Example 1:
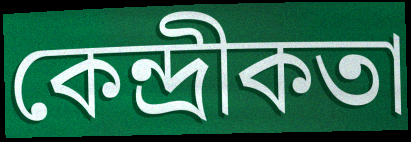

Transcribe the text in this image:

কেন্দ্রীকতা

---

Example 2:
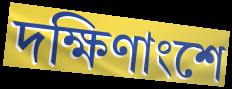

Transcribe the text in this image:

দক্ষিণাংশে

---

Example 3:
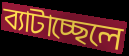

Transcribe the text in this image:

ব্যাটাচ্ছেলে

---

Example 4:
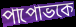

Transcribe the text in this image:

পাপোভকে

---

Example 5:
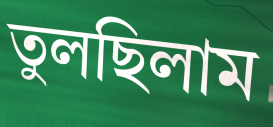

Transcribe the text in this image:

তুলছিলাম